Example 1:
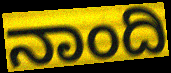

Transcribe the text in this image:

ನಾಂದಿ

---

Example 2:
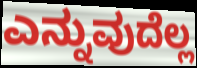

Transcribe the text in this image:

ಎನ್ನುವುದೆಲ್ಲ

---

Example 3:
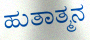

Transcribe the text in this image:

ಹುತಾತ್ಮನ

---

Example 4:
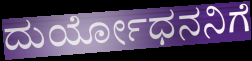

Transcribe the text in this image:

ದುರ್ಯೋಧನನಿಗೆ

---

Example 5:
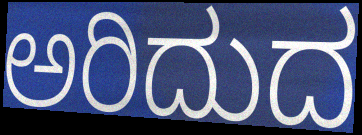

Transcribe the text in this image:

ಅರಿದುದ